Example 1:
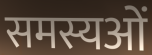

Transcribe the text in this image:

समस्यओं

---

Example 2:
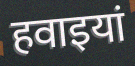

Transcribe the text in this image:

हवाइयां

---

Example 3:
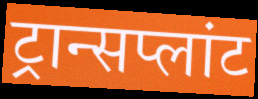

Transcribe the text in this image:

ट्रान्सप्लांट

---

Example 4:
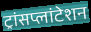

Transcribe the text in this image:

ट्रांसप्लांटेशन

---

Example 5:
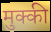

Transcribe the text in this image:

मुक्की